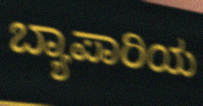
ಬ್ಯಾಪಾರಿಯ